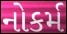
નોકર્મ